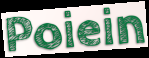
Poiein